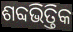
ଶବ୍ଦଭିତ୍ତିକ